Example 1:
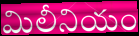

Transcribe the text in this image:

మిలీనియం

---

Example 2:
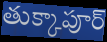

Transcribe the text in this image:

తుక్కాపూర్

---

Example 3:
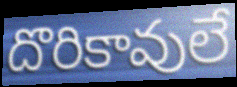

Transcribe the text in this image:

దొరికావులే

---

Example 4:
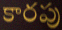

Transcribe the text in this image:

కారపు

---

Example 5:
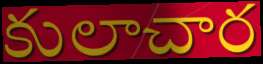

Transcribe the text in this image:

కులాచార